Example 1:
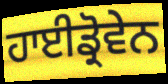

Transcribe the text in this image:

ਹਾਈਡ੍ਰੋਵੇਨ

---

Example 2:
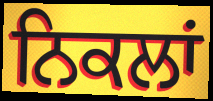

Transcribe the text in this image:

ਨਿਕਲਾਂ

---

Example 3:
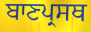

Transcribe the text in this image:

ਬਾਣਪ੍ਰਸਥ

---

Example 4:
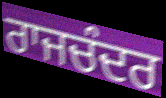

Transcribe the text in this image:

ਰਾਜਚੰਦਰ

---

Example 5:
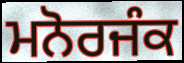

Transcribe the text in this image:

ਮਨੋਰਜੰਕ